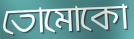
তোমোকো